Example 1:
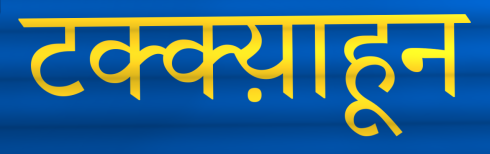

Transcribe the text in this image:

टक्क्य़ाहून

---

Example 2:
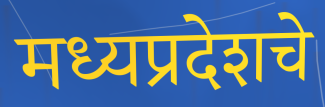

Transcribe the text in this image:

मध्यप्रदेशचे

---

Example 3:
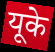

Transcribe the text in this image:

यूके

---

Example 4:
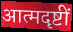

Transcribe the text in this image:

आत्मदृष्टीं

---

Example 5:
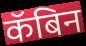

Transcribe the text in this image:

कॅबिन